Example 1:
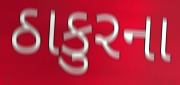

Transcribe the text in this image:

ઠાકુરના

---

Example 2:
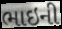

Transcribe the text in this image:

ભાઇની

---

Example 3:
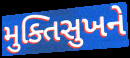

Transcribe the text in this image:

મુક્તિસુખને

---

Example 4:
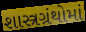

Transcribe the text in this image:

શાસ્ત્રગ્રંથોમાં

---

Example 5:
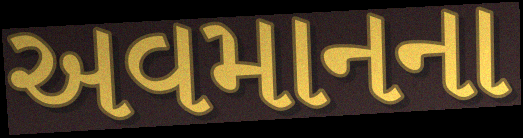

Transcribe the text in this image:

અવમાનના